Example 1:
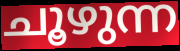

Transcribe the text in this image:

ചൂഴുന്ന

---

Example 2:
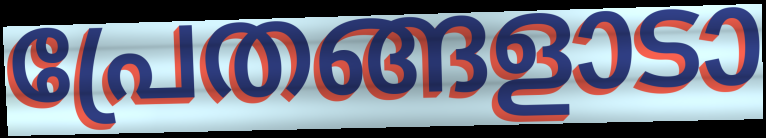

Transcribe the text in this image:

പ്രേതങ്ങളാടാ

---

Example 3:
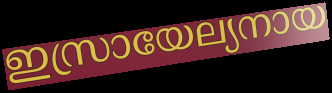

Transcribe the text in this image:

ഇസ്രായേല്യനായ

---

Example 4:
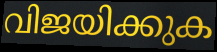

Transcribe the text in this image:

വിജയിക്കുക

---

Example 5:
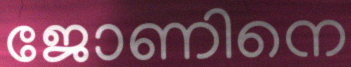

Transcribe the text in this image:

ജോണിനെ